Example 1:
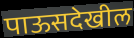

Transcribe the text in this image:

पाऊसदेखील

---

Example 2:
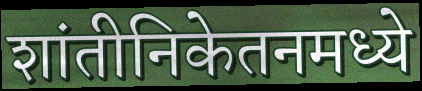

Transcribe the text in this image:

शांतीनिकेतनमध्ये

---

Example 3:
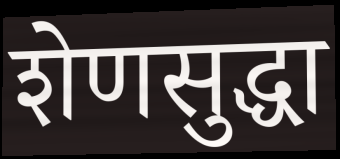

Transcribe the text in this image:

शेणसुद्धा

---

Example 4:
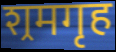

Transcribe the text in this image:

श्रमगृह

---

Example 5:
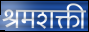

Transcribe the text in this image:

श्रमशक्ती